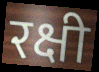
रक्षी